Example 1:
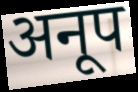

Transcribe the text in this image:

अनूप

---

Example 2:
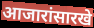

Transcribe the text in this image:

आजारांसारखे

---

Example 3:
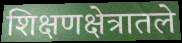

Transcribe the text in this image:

शिक्षणक्षेत्रातले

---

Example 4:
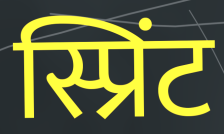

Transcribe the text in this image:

स्प्रिंट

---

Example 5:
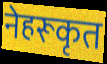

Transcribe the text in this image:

नेहरूकृत